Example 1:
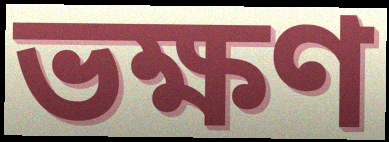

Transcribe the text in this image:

ভক্ষণ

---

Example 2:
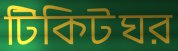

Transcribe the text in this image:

টিকিটঘর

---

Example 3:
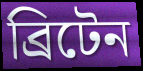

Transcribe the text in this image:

ব্রিটেন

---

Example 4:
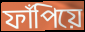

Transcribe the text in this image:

ফাঁপিয়ে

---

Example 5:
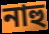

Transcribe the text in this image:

নাহু